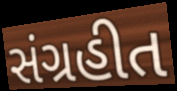
સંગ્રહીત